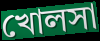
খোলসা